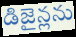
డిజైన్లను